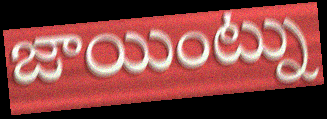
జాయింట్ను